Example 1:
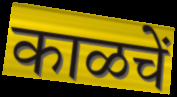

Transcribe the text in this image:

काळचें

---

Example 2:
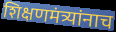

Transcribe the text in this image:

शिक्षणमंत्र्यांनाच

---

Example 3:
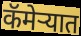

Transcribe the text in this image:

कॅमेऱ्यात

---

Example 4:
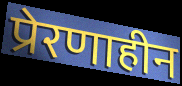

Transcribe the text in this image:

प्रेरणाहीन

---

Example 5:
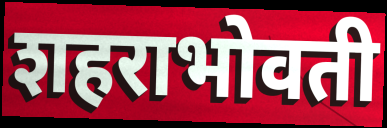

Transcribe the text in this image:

शहराभोवती